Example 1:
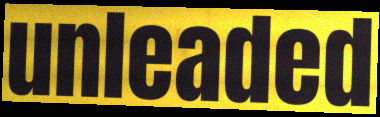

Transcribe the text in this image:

unleaded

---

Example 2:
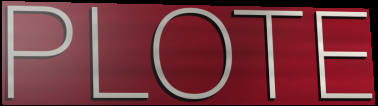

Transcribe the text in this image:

PLOTE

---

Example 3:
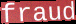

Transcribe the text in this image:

fraud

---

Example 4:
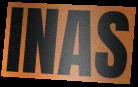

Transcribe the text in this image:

INAS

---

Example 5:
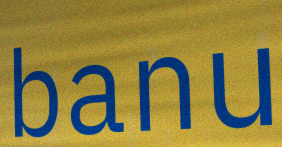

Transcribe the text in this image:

banu